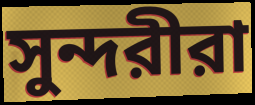
সুন্দরীরা